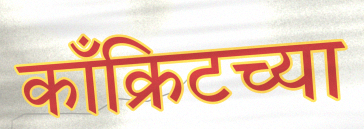
काँक्रिटच्या